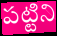
పట్టిని